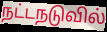
நட்டநடுவில்